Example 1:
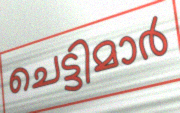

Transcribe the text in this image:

ചെട്ടിമാർ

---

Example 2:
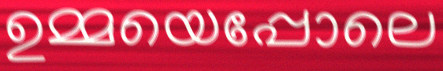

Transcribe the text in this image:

ഉമ്മയെപ്പോലെ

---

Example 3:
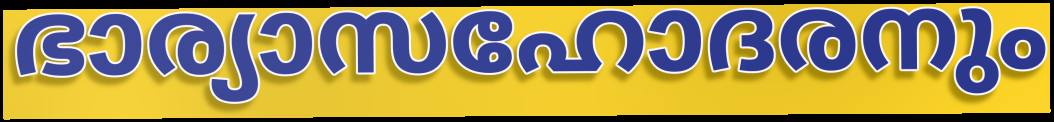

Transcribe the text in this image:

ഭാര്യാസഹോദരനും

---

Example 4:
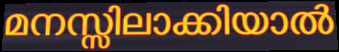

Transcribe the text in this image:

മനസ്സിലാക്കിയാൽ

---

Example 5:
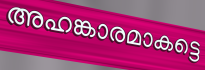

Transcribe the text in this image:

അഹങ്കാരമാകട്ടെ